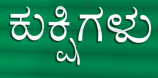
ಕುಕ್ಷಿಗಳು